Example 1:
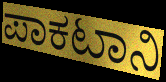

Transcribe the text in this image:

ಪಾಕಟಾನಿ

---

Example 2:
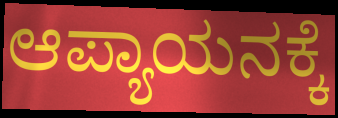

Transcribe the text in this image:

ಆಪ್ಯಾಯನಕ್ಕೆ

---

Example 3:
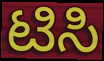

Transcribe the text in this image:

ಟಿಸಿ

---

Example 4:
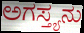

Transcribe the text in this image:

ಅಗಸ್ತ್ಯನು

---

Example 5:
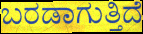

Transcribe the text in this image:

ಬರಡಾಗುತ್ತಿದೆ